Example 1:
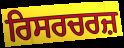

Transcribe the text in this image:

ਰਿਸਰਚਰਜ਼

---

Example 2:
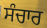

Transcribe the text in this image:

ਸੰਚਾਰ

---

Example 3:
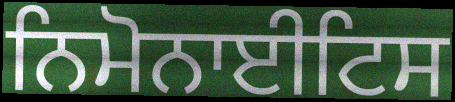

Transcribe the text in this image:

ਨਿਮੋਨਾਈਟਿਸ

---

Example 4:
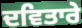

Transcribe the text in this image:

ਦਵਿਤਾਰੇ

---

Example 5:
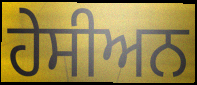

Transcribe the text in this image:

ਹੇਸੀਅਨ